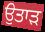
ਉਤਾਡ਼